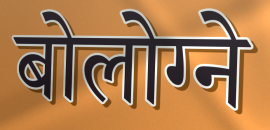
बोलोग्ने